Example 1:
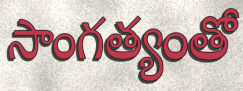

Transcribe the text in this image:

సాంగత్యంతో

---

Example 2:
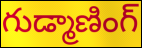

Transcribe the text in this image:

గుడ్మాణింగ్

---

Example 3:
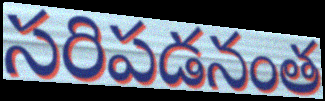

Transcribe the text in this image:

సరిపడనంత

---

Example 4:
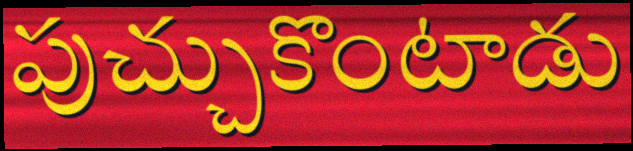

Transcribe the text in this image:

పుచ్చుకొంటాడు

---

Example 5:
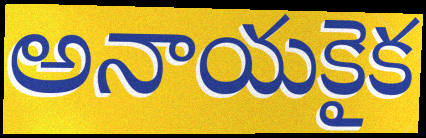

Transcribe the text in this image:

అనాయకైక